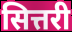
सित्तरी